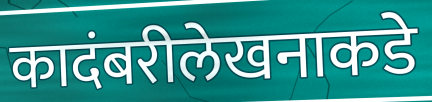
कादंबरीलेखनाकडे